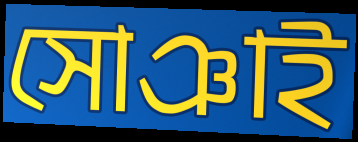
সোঞাই